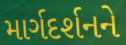
માર્ગદર્શનને